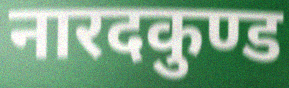
नारदकुण्ड